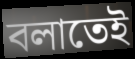
বলাতেই